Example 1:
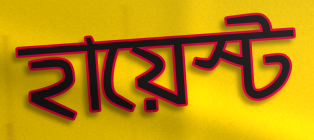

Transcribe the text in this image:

হায়েস্ট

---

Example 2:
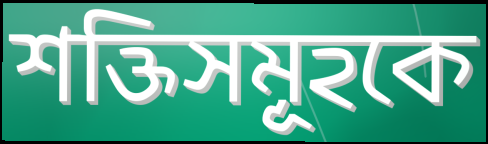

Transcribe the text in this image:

শক্তিসমূহকে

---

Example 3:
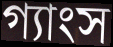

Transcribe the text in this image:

গ্যাংস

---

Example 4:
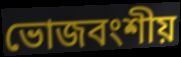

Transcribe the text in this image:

ভোজবংশীয়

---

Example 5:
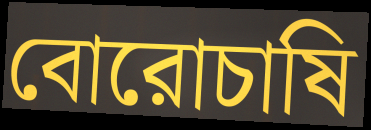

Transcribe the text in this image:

বোরোচাষি